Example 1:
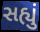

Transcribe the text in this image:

સહ્યું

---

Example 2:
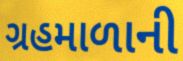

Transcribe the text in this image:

ગ્રહમાળાની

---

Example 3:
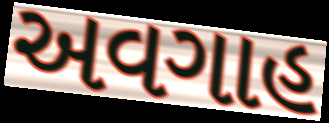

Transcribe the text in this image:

અવગાહ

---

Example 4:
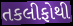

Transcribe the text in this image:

તકલીફોથી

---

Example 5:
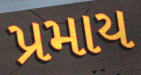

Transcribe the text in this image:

પ્રમાય